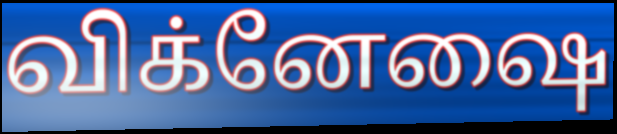
விக்னேஷை